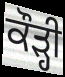
ਕੌੜ੍ਹੀ